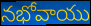
నభోవాయు